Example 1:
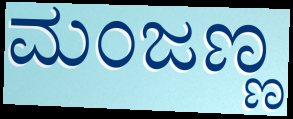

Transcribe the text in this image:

ಮಂಜಣ್ಣ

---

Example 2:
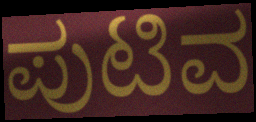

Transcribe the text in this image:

ಪುಟಿವ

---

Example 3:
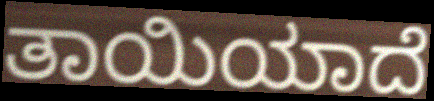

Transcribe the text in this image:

ತಾಯಿಯಾದೆ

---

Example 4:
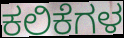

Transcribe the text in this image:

ಕಲಿಕೆಗಳ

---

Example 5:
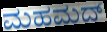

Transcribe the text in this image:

ಮಹಮದ್